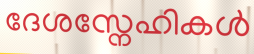
ദേശസ്നേഹികൾ